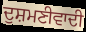
ਦੁਸ਼ਮਣੀਵਾਦੀ